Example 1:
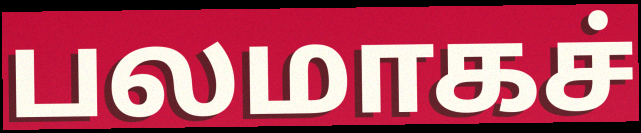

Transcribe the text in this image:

பலமாகச்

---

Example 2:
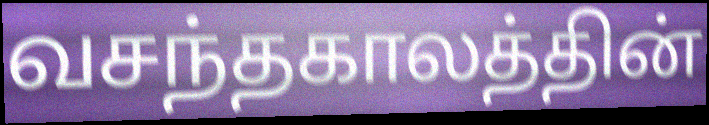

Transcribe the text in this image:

வசந்தகாலத்தின்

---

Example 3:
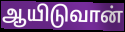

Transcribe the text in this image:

ஆயிடுவான்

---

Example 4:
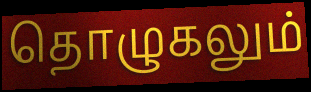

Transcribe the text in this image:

தொழுகலும்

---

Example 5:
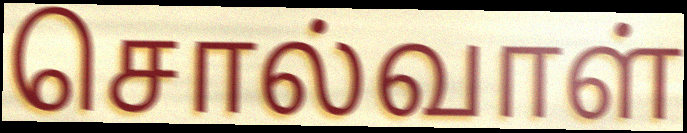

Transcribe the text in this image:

சொல்வாள்